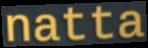
natta